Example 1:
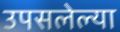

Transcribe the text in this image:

उपसलेल्या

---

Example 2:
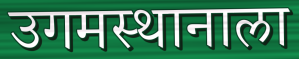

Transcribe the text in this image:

उगमस्थानाला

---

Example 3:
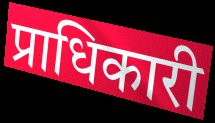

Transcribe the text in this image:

प्राधिकारी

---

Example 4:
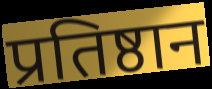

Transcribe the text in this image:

प्रतिष्ठान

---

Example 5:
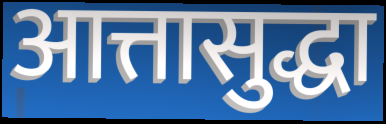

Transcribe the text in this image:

आत्तासुद्धा